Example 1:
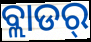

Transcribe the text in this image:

ବ୍ଲାଡର୍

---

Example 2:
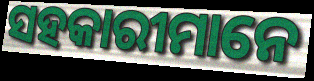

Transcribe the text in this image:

ସହକାରୀମାନେ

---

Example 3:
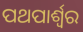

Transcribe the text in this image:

ପଥପାର୍ଶ୍ଵର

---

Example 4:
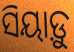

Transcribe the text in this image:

ସିୟାଡ଼ୁ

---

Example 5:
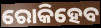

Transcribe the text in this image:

ରୋକିହେବ